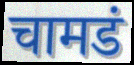
चामडं